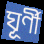
ঘূৰ্ণী